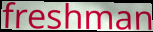
freshman